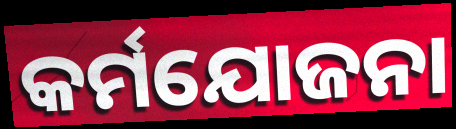
କର୍ମଯୋଜନା